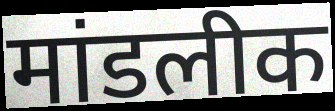
मांडलीक